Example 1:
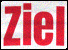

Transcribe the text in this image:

Ziel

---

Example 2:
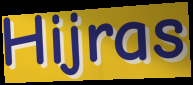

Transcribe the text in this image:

Hijras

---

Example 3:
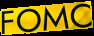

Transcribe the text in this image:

FOMC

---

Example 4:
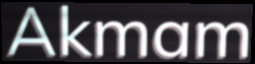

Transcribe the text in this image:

Akmam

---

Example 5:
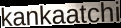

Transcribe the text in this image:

kankaatchi